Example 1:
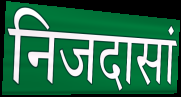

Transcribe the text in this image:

निजदासां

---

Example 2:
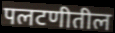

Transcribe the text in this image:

पलटणीतील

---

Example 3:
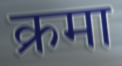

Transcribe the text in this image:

क्रमा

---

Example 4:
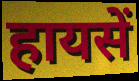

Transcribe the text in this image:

हायसें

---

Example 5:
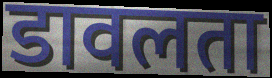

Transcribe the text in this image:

डावलता